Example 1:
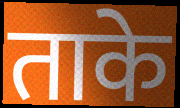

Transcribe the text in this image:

ताके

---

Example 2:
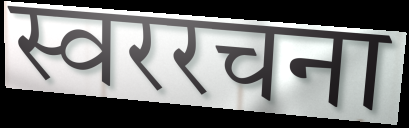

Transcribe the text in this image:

स्वररचना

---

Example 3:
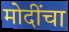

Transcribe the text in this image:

मोदींचा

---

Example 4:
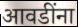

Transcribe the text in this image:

आवडींना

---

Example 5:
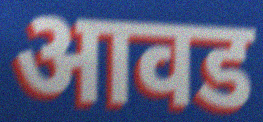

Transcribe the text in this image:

आवड